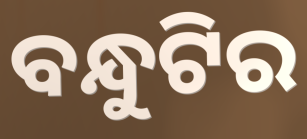
ବନ୍ଧୁଟିର